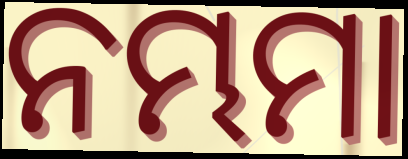
ନମ୍ଭମା